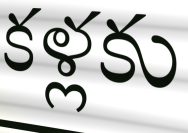
కళ్లకు